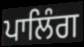
ਪਾਲਿੰਗ